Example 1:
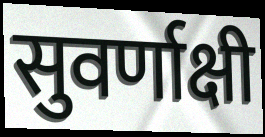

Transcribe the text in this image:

सुवर्णाक्षी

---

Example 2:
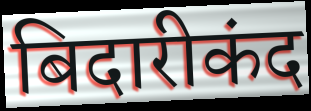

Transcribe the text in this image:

बिदारीकंद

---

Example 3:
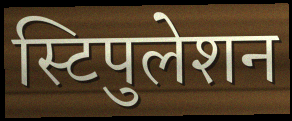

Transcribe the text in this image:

स्टिपुलेशन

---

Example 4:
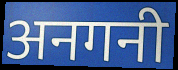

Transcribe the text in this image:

अनगनी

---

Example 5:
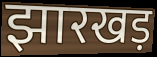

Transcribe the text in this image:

झारखड़